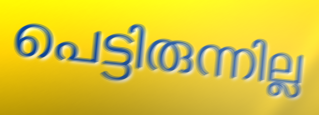
പെട്ടിരുന്നില്ല